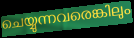
ചെയ്യുന്നവരെങ്കിലും